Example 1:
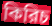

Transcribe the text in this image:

কিরিচ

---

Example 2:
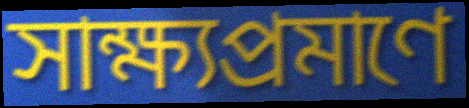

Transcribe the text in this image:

সাক্ষ্যপ্রমাণে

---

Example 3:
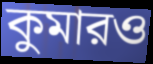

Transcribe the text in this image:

কুমারও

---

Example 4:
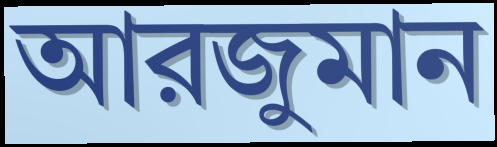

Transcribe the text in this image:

আরজুমান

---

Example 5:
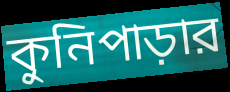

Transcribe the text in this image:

কুনিপাড়ার